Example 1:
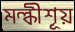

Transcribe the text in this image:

মল্কীশূয়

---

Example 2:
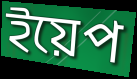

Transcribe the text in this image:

ইয়েপ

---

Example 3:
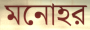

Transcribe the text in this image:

মনোহর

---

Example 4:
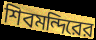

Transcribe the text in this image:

শিবমন্দিরের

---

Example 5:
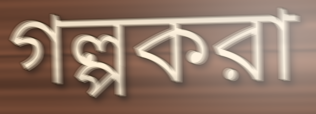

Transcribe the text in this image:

গল্পকরা